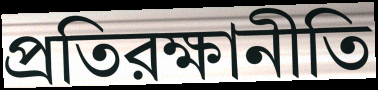
প্রতিরক্ষানীতি